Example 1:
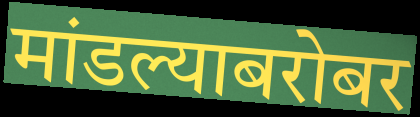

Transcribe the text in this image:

मांडल्याबरोबर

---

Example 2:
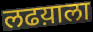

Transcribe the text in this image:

लढय़ाला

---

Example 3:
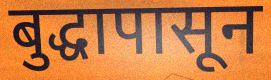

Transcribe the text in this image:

बुद्धापासून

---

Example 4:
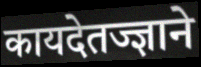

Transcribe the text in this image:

कायदेतज्ज्ञाने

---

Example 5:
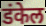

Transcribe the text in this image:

डंकेल